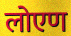
लोएण